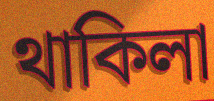
থাকিলা